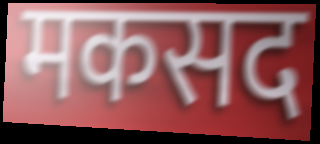
मकसद